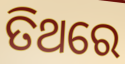
ତିଥରେ